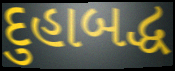
દુહાબદ્ધ